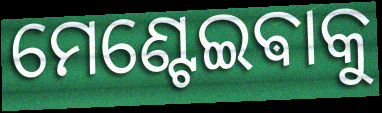
ମେଣ୍ଟେଇଵାକୁ